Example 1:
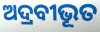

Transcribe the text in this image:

ଅଦ୍ରବୀଭୂତ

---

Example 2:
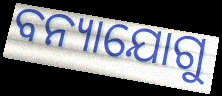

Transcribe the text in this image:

ବନ୍ୟାଯୋଗୁ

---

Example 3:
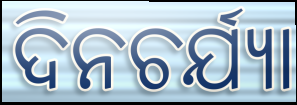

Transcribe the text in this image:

ଦିନଚର୍ଯ୍ଯା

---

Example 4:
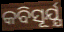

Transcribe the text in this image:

କବିସୂର୍ଯ୍ଯ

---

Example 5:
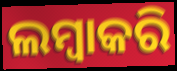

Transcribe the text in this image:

ଲମ୍ବାକରି